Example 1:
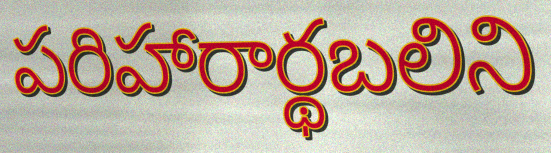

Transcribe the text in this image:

పరిహారార్థబలిని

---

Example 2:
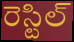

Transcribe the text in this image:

రెస్టిల్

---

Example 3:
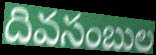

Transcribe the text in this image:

దివసంబుల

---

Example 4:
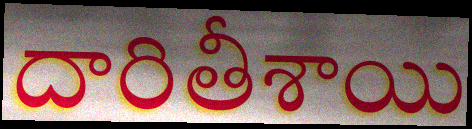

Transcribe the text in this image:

దారితీశాయి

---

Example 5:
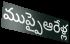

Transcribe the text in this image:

ముప్పైఆరేళ్ల